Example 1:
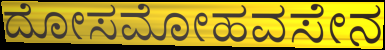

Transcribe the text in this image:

ದೋಸಮೋಹವಸೇನ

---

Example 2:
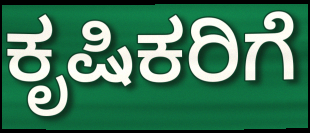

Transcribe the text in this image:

ಕೃಷಿಕರಿಗೆ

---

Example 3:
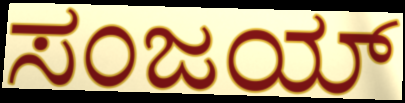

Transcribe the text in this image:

ಸಂಜಯ್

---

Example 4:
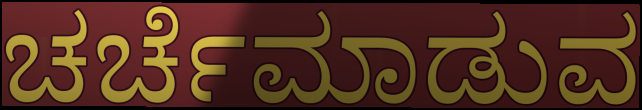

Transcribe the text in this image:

ಚರ್ಚೆಮಾಡುವ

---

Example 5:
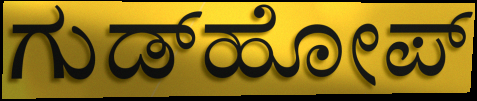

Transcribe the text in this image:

ಗುಡ್‌ಹೋಪ್